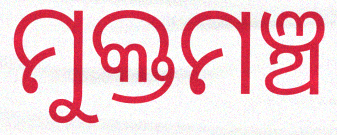
ମୁକ୍ତମଞ୍ଚ